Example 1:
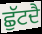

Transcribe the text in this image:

ਛੁੱਟਦੈ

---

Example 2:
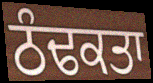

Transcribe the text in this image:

ਠੰਢਕਤਾ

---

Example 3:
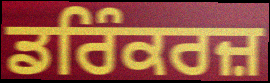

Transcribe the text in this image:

ਡਰਿੰਕਰਜ਼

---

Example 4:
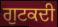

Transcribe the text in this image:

ਗੁਟਕਦੀ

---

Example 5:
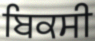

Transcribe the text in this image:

ਬਿਕਸੀ